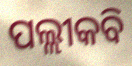
ପଲ୍ଲୀକବି